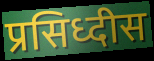
प्रसिध्दीस